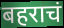
बहराचं